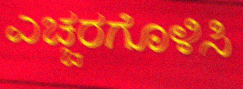
ಎಚ್ಚರಗೊಳಿಸಿ